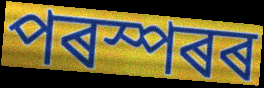
পৰস্পৰৰ